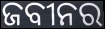
ଜବୀନର